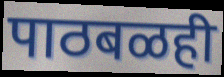
पाठबळही